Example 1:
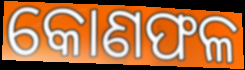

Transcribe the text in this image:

କୋଣଫଳ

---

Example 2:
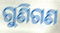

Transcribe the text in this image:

ଗୁଣିଗଣ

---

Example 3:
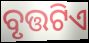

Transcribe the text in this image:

ବୃତ୍ତଟିଏ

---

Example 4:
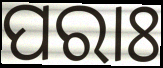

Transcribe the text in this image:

ପରାଃ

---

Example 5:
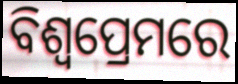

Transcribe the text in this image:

ବିଶ୍ୱପ୍ରେମରେ